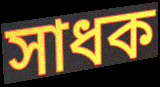
সাধক